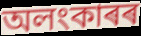
অলংকাৰৰ